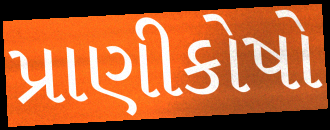
પ્રાણીકોષો